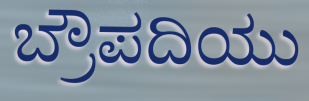
ಬ್ರೌಪದಿಯು